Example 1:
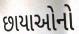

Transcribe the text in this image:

છાયાઓનો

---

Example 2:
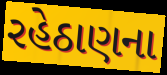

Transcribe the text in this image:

રહેઠાણના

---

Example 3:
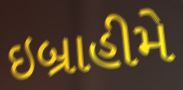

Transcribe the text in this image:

ઇબ્રાહીમે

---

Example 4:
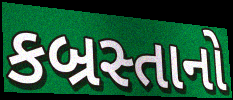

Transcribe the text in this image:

કબ્રસ્તાનો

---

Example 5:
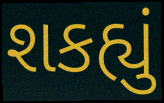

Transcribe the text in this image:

શકહ્યું